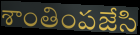
శాంతింపజేసి